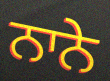
ਨਾਨੇ